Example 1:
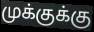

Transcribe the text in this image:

முக்குக்கு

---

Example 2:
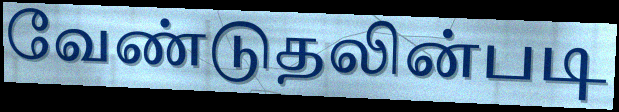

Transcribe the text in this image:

வேண்டுதலின்படி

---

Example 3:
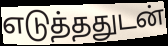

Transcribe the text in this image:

எடுத்ததுடன்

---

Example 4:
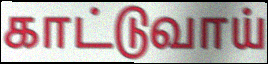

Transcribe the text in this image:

காட்டுவாய்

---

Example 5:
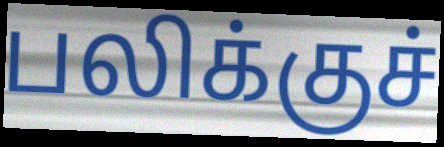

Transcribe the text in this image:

பலிக்குச்